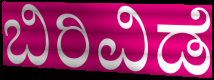
ಬಿರಿವಿಡೆ